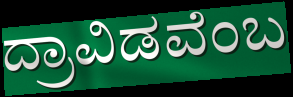
ದ್ರಾವಿಡವೆಂಬ